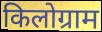
किलोग्राम